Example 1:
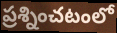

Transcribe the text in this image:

ప్రశ్నించటంలో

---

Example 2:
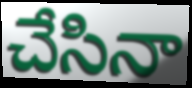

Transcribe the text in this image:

చేసినా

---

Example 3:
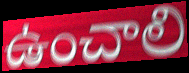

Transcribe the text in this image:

ఉంచాలి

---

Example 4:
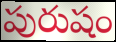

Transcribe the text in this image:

పురుషం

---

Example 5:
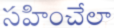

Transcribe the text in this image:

సహించేలా